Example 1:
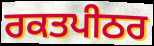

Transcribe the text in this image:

ਰਕਤਪੀਠਰ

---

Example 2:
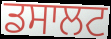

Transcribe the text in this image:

ਡਸਾਲਟ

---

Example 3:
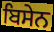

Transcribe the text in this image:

ਬਿਸੇਨ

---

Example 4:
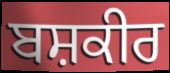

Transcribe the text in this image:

ਬਸ਼ਕੀਰ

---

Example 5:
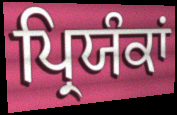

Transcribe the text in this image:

ਪ੍ਰਿਯੰਕਾਂ